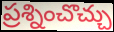
ప్రశ్నించొచ్చు